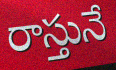
రాస్తునే